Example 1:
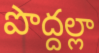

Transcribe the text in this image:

పొద్దల్లా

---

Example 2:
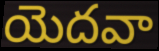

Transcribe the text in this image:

యెదవా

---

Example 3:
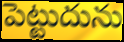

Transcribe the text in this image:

పెట్టుదును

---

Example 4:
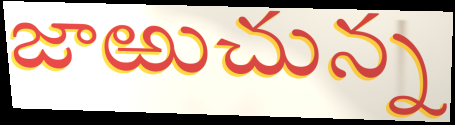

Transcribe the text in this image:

జాఱుచున్న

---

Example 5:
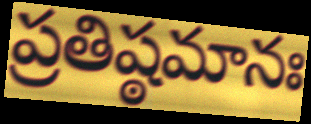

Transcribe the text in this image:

ప్రతిష్ఠమానః